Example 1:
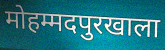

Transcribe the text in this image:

मोहम्मदपुरखाला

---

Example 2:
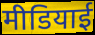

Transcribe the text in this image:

मीडियाई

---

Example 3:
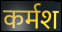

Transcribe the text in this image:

कर्मश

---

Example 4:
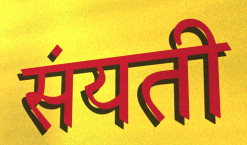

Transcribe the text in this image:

संयती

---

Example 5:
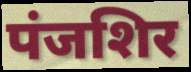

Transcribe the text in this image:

पंजशिर